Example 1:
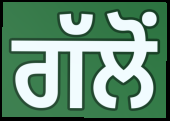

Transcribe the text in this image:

ਗੱਲੋਂ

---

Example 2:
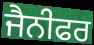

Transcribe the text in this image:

ਜੈਨੀਫਰ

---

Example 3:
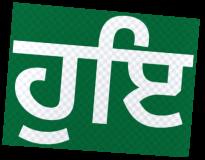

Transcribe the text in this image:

ਹੁਇ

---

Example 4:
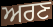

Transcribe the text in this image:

ਅਰਣ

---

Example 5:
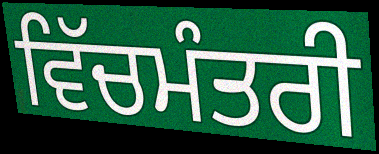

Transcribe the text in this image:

ਵਿੱਚਮੰਤਰੀ